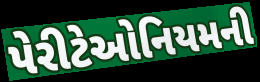
પેરીટેઓનિયમની